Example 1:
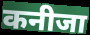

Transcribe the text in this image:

कनीजा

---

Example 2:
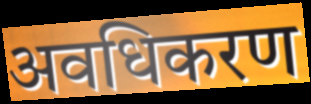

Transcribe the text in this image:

अवधिकरण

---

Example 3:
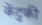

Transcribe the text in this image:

केंटुकी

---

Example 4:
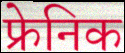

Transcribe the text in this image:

फ्रेनिक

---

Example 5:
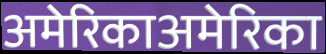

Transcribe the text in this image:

अमेरिकाअमेरिका